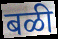
बळी